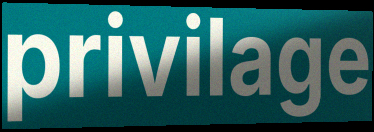
privilage